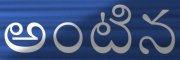
అంటిన